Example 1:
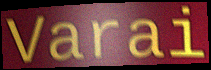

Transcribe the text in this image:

Varai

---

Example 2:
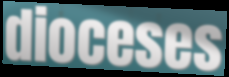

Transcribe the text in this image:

dioceses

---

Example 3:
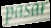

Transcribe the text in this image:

pasar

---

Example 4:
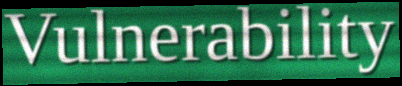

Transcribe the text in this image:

Vulnerability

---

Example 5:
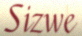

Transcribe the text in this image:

Sizwe